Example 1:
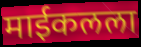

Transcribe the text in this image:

माईकलला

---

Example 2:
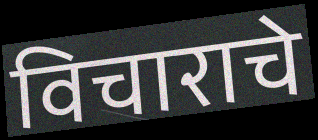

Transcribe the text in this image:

विचाराचे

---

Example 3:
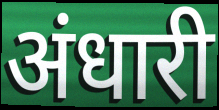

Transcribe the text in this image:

अंधारी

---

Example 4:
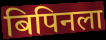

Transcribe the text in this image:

बिपिनला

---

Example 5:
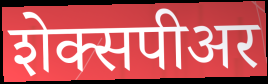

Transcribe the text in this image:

शेक्सपीअर